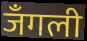
जँगली